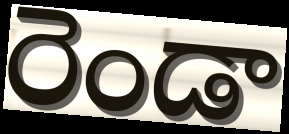
రెండా